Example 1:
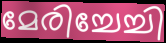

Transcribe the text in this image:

മേരിച്ചേച്ചി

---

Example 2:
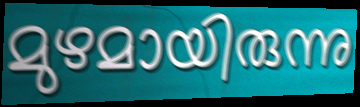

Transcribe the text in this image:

മുഴമായിരുന്നു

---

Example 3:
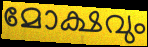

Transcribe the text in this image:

മോക്ഷവും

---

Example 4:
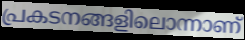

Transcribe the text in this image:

പ്രകടനങ്ങളിലൊന്നാണ്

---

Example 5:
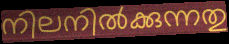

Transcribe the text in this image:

നിലനിൽക്കുന്നതു